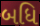
બધિ